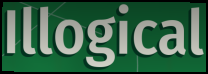
Illogical